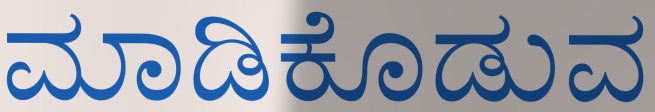
ಮಾಡಿಕೊಡುವ